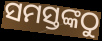
ସମସ୍ତଙ୍କଠୁ